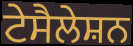
ਟੇਸੈਲੇਸ਼ਨ